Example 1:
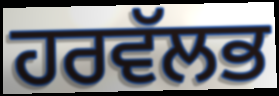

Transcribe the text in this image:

ਹਰਵੱਲਭ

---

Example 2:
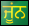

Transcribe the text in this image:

ਜੂਂਨ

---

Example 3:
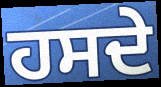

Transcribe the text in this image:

ਹਸਦੇ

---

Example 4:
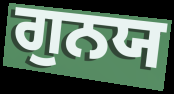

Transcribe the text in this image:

ਗੁਨਯ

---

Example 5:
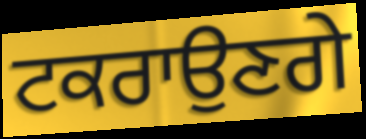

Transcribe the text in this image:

ਟਕਰਾਉਣਗੇ